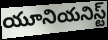
యూనియనిస్ట్